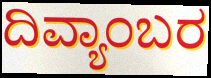
ದಿವ್ಯಾಂಬರ